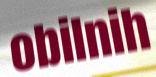
obilnih